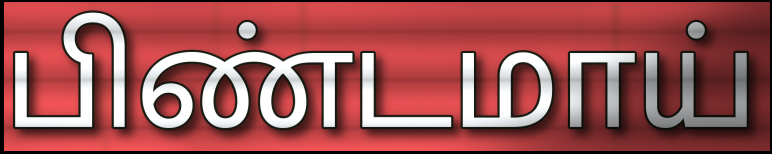
பிண்டமாய்